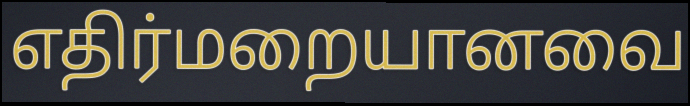
எதிர்மறையானவை